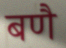
बणै